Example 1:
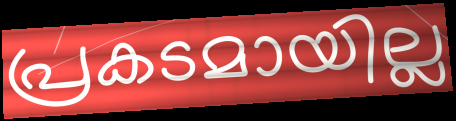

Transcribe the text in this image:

പ്രകടമായില്ല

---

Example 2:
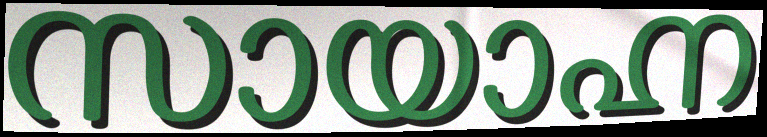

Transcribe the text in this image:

സായാഹ്ന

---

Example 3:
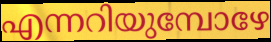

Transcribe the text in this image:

എന്നറിയുമ്പോഴേ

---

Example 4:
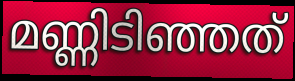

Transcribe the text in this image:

മണ്ണിടിഞ്ഞത്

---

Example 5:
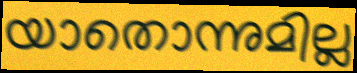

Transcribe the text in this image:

യാതൊന്നുമില്ല